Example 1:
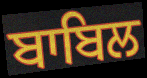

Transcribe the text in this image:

ਬਾਬਿਲ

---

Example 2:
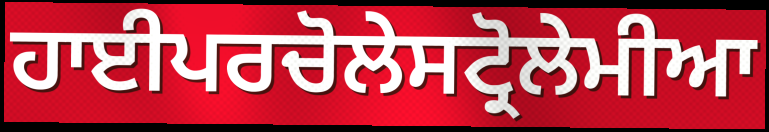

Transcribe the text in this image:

ਹਾਈਪਰਚੋਲੇਸਟ੍ਰੋਲੇਮੀਆ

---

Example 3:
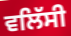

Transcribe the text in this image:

ਵਲਿੱਸੀ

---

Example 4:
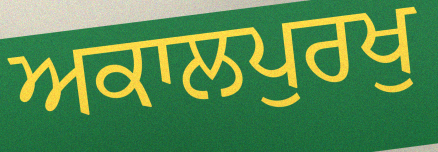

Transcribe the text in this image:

ਅਕਾਲਪੁਰਖੁ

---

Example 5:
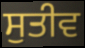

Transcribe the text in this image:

ਸੁਤੀਵ